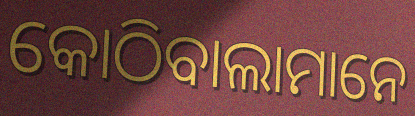
କୋଠିବାଲାମାନେ